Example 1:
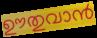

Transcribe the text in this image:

ഊതുവാൻ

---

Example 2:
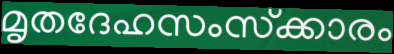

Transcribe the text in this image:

മൃതദേഹസംസ്‌ക്കാരം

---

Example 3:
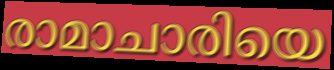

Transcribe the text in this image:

രാമാചാരിയെ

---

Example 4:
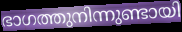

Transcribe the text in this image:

ഭാഗത്തുനിന്നുണ്ടായി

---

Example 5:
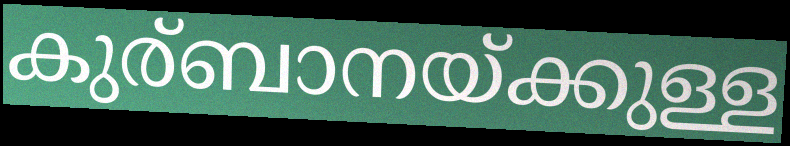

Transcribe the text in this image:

കുര്ബാനയ്ക്കുള്ള